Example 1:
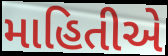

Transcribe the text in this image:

માહિતીએ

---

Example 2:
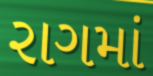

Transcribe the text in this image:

રાગમાં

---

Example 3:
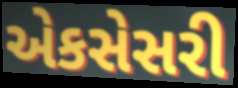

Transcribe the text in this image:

એકસેસરી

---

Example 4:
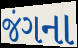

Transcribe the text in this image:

જંગના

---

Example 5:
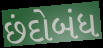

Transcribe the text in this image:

છંદોબંધ